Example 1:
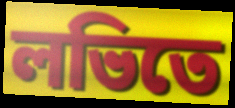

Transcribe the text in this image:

লভিতে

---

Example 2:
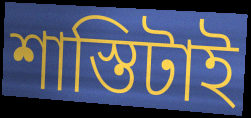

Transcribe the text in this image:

শাস্তিটাই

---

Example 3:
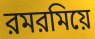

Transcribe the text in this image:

রমরমিয়ে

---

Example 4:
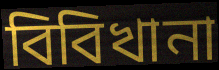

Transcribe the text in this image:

বিবিখানা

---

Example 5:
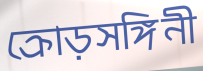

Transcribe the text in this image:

ক্রোড়সঙ্গিনী